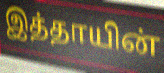
இத்தாயின்